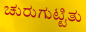
ಚುರುಗುಟ್ಟಿತು